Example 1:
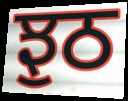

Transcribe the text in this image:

ਝੁਠ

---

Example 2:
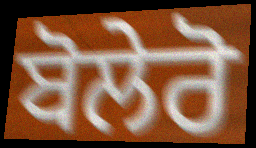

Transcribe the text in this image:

ਬੋਲੇਰੋ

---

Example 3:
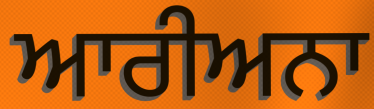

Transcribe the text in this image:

ਆਰੀਅਨਾ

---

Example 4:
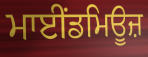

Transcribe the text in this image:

ਮਾਈਂਡਮਿਊਜ਼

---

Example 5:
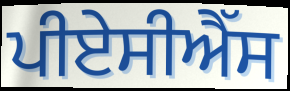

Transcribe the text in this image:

ਪੀਏਸੀਐੱਸ